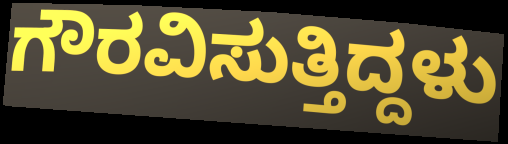
ಗೌರವಿಸುತ್ತಿದ್ದಳು